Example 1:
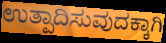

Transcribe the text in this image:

ಉತ್ಪಾದಿಸುವುದಕ್ಕಾಗಿ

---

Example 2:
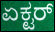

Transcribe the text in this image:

ಏಕ್ಟರ್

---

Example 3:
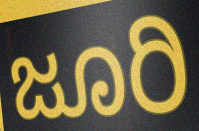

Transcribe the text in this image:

ಜೂರಿ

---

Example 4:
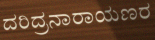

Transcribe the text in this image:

ದರಿದ್ರನಾರಾಯಣರ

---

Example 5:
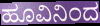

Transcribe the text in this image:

ಹೂವಿನಿಂದ